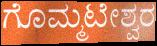
ಗೊಮ್ಮಟೇಶ್ವರ